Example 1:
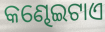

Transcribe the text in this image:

କଣ୍ଢେଇଟାଏ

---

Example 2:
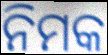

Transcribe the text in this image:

ନିମକ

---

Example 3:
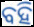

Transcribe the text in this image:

ବହି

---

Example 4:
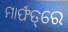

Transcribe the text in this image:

ମାର୍ଫତ୍‌ରେ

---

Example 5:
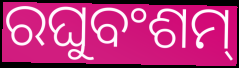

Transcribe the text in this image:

ରଘୁବଂଶମ୍